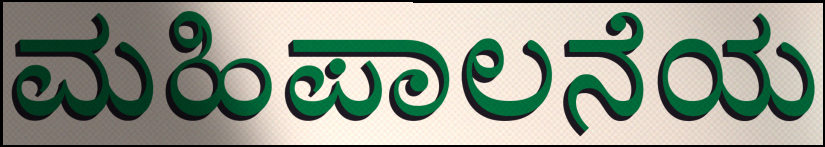
ಮಹಿಪಾಲನೆಯ